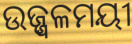
ଉଜ୍ଜ୍ୱଳମୟୀ